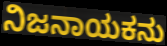
ನಿಜನಾಯಕನು